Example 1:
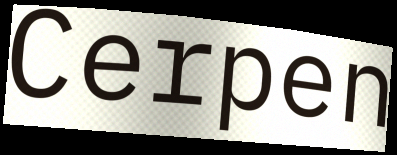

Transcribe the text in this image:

Cerpen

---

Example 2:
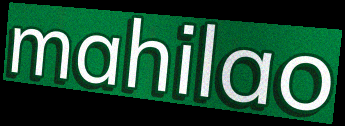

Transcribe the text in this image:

mahilao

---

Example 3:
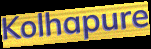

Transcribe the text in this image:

Kolhapure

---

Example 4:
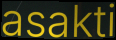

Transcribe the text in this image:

asakti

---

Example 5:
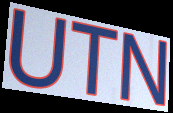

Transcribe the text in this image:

UTN